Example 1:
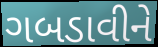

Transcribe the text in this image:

ગબડાવીને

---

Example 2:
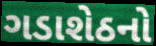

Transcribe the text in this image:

ગડાશેઠનો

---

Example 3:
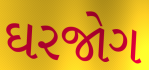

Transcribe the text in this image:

ઘરજોગ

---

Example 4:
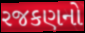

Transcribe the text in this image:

રજકણનો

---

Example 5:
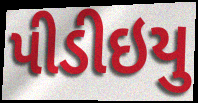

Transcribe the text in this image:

પીડીઇયુ